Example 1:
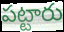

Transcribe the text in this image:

పట్టారు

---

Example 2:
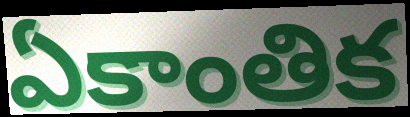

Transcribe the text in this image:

ఏకాంతిక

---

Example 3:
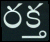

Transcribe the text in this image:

రక్త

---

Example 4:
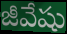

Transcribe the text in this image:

జీవేషు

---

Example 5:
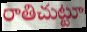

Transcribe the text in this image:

రాతిచుట్టూ